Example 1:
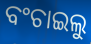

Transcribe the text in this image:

ବଂଚାଇଲୁ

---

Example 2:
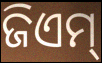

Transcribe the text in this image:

ଜିଏମ୍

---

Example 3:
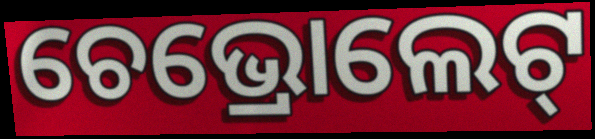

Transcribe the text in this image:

ଚେଭ୍ରୋଲେଟ୍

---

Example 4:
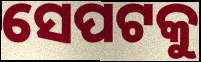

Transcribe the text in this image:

ସେପଟକୁ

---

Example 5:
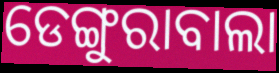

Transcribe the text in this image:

ଡେଙ୍ଗୁରାବାଲା